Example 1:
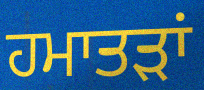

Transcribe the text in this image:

ਹਮਾਤੜਾਂ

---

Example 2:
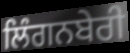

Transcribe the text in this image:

ਲਿੰਗਨਬੇਰੀ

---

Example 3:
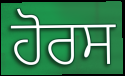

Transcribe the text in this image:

ਹੋਰਸ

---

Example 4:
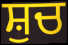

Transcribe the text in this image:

ਸ਼ੁਚ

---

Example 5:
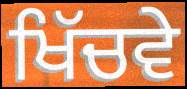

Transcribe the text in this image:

ਖਿੱਚਵੇ